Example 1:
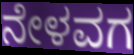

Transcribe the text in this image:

ನೇಳವಗ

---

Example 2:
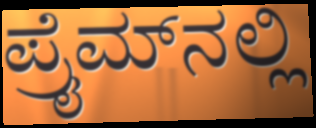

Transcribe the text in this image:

ಪ್ರೈಮ್‌ನಲ್ಲಿ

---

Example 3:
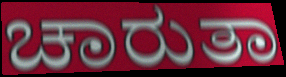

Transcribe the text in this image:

ಚಾರುತಾ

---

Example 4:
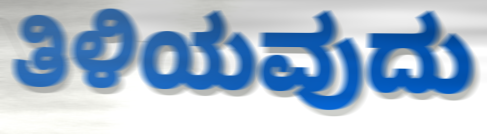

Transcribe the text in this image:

ತಿಳಿಯವುದು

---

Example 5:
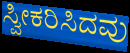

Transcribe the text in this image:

ಸ್ವೀಕರಿಸಿದವು